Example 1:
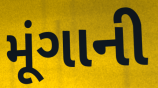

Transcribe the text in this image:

મૂંગાની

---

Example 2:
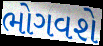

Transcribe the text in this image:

ભોગવશે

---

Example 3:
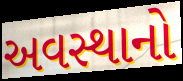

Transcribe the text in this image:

અવસ્થાનો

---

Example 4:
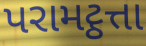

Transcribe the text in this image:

પરામટ્ઠત્તા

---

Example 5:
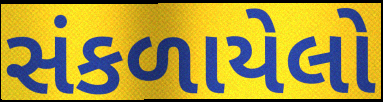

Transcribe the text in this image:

સંકળાયેલો